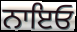
ਨਾਇਓ